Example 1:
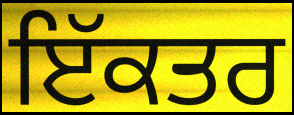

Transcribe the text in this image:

ਇੱਕਤਰ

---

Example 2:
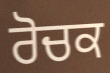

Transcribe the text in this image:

ਰੋਚਕ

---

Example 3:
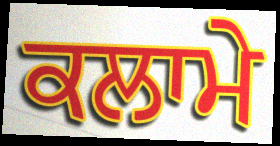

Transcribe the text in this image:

ਕਲਾਮੇ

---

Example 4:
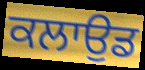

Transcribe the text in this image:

ਕਲਾਉਡ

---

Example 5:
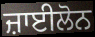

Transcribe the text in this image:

ਜ਼ਾਈਲੋਨ